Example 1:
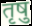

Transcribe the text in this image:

तृषु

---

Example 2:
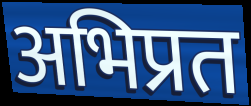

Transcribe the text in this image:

अभिप्रत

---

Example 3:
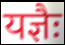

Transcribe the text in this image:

यज्ञैः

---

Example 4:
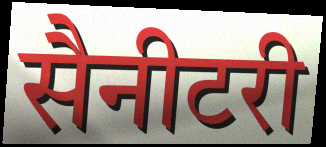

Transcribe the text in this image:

सैनीटरी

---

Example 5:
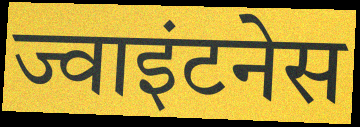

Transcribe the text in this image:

ज्वाइंटनेस